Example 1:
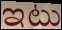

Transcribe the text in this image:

ఇటు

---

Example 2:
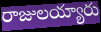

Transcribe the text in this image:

రాజులయ్యారు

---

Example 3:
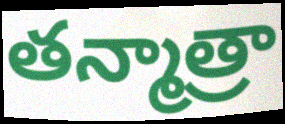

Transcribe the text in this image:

తన్మాత్రా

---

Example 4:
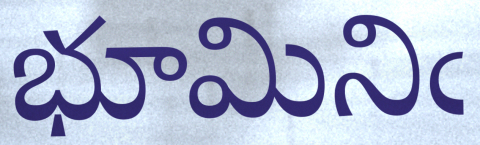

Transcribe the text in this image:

భూమినిఁ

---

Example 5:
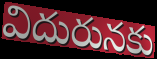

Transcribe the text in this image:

విదురునకు